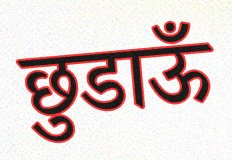
छुडाऊँ